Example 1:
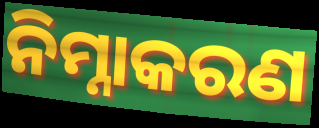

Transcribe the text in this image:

ନିମ୍ନାକରଣ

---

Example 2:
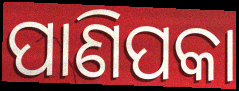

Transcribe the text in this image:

ପାଣିପକା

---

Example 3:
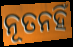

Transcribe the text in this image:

ନୂତନହିଁ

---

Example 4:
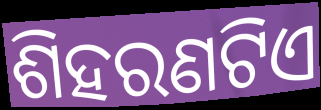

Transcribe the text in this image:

ଶିହରଣଟିଏ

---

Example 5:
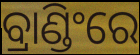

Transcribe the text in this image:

ବ୍ରାଣ୍ଡିଂରେ